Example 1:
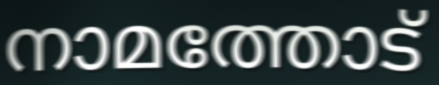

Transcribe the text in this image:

നാമത്തോട്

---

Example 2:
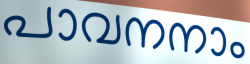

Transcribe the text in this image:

പാവനനാം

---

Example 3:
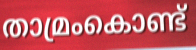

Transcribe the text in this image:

താമ്രംകൊണ്ട്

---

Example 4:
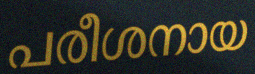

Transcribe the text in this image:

പരീശനായ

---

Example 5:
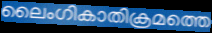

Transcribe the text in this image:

ലൈംഗികാതിക്രമത്തെ